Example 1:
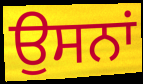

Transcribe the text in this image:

ਉਸਨਾਂ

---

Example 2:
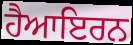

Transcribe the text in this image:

ਹੈਆਇਰਨ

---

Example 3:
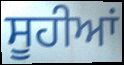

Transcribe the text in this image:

ਸੂਹੀਆਂ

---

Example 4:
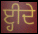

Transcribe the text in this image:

ੲ੍ਹੀਦੇ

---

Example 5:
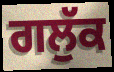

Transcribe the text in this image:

ਗਲੁੱਕ